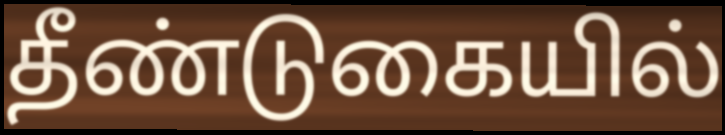
தீண்டுகையில்